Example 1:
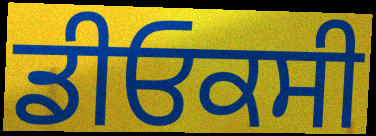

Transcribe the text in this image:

ਡੀਓਕਸੀ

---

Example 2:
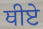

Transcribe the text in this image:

ਥੀਏ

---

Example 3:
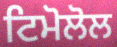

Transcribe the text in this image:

ਟਿਮੋਲੋਲ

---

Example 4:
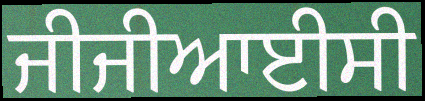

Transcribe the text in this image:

ਜੀਜੀਆਈਸੀ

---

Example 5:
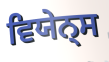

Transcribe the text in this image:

ਵਿਯੇਨ੍ਸ